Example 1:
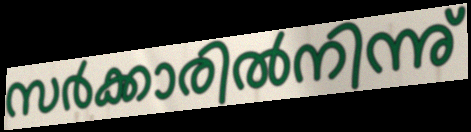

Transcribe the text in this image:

സർക്കാരിൽനിന്നു്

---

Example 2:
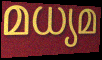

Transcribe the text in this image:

മധ്യമ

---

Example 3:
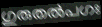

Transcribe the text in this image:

ഗുരുതൽപഗഃ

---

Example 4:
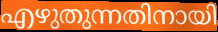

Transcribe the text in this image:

എഴുതുന്നതിനായി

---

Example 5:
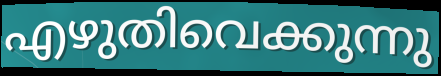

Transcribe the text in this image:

എഴുതിവെക്കുന്നു